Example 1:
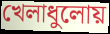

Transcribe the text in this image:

খেলাধুলোয়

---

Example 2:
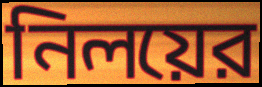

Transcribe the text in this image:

নিলয়ের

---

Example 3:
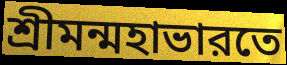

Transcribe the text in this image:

শ্রীমন্মহাভারতে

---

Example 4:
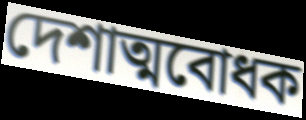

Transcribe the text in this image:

দেশাত্মবোধক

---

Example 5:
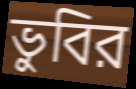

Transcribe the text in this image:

ভুবির